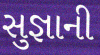
સુજ્ઞાની